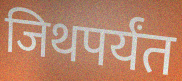
जिथपर्यंत